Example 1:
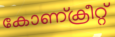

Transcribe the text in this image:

കോണ്ക്രീറ്റ്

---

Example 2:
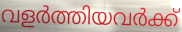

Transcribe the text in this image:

വളർത്തിയവർക്ക്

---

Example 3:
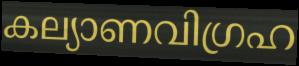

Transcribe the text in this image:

കല്യാണവിഗ്രഹ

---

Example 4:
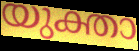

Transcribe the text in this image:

യുക്താ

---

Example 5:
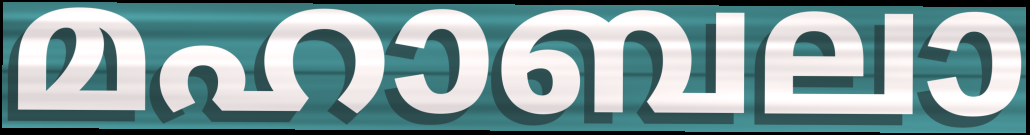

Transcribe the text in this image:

മഹാബലാ